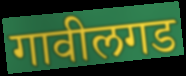
गावीलगड